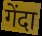
गेंदा